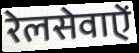
रेलसेवाऐं